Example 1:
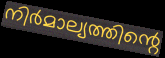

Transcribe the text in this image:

നിർമാല്യത്തിന്റെ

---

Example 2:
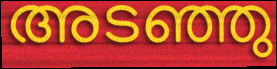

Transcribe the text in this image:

അടഞ്ഞു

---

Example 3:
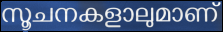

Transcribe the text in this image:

സൂചനകളാലുമാണ്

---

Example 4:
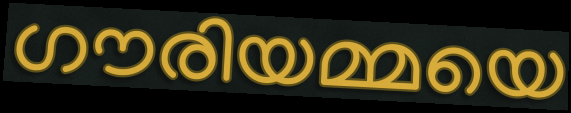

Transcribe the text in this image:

ഗൗരിയമ്മയെ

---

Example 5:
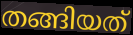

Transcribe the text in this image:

തങ്ങിയത്